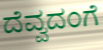
ದೆವ್ವದಂಗೆ